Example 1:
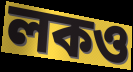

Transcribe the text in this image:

লকও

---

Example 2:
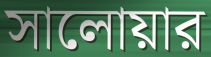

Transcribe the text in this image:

সালোয়ার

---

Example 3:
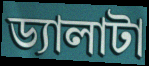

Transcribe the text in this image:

ড্যালাটা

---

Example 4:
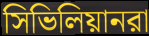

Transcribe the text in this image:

সিভিলিয়ানরা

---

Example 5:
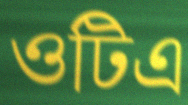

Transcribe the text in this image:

ওটিএ